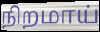
நிறமாய்